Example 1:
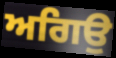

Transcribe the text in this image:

ਅਗਿਉ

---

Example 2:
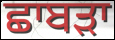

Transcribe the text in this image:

ਛਾਬੜਾ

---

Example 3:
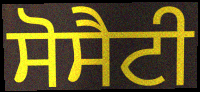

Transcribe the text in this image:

ਸੋਸੈਟੀ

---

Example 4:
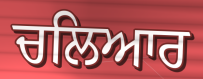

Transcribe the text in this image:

ਚਲਿਆਰ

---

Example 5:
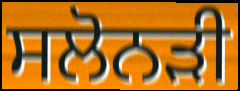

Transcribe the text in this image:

ਸਲੋਨੜੀ